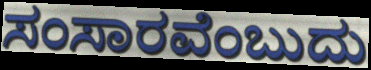
ಸಂಸಾರವೆಂಬುದು